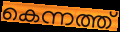
കെന്നത്ത്